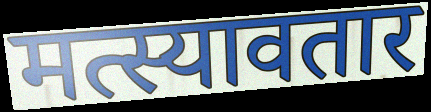
मत्स्यावतार